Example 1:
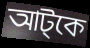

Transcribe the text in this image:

আট্‌কে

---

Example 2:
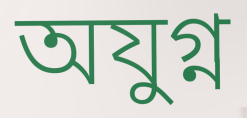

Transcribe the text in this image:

অযুগ্ন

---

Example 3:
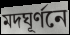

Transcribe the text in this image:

মদঘূর্ণনে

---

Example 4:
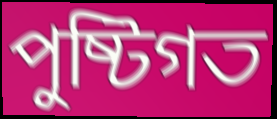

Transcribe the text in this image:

পুষ্টিগত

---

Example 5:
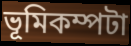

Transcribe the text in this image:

ভূমিকম্পটা